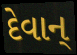
દેવાન્